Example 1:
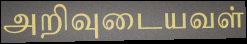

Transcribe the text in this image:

அறிவுடையவள்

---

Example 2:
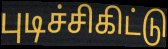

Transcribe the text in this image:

புடிச்சிகிட்டு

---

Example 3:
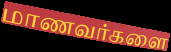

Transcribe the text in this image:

மாணவர்களை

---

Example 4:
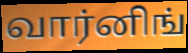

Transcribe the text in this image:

வார்னிங்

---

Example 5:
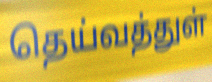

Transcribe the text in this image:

தெய்வத்துள்